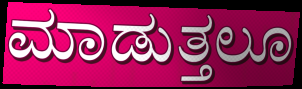
ಮಾಡುತ್ತಲೂ